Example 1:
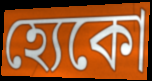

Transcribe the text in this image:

হ্যেকো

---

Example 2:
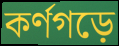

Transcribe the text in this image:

কর্ণগড়ে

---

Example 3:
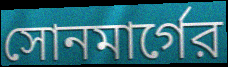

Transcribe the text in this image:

সোনমার্গের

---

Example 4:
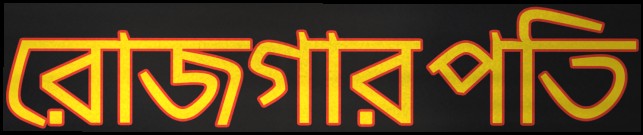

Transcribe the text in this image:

রোজগারপতি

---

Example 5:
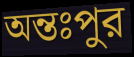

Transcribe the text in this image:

অন্তঃপুর